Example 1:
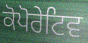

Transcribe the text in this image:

ਕੋਪੋਰੇਟਿਵ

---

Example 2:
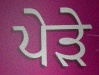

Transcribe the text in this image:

ਪੇੜੇ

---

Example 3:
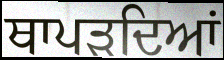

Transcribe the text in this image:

ਥਾਪੜਦਿਆਂ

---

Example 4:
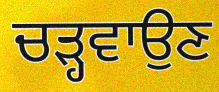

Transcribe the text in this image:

ਚੜ੍ਹਵਾਉਣ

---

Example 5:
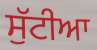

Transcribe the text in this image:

ਸੁੱਟੀਆ